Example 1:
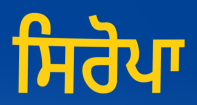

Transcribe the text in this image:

ਸਿਰੋਪਾ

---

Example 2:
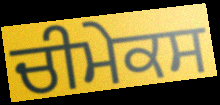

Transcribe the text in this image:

ਚੀਮੇਕਸ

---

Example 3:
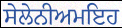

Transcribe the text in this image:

ਸੇਲੇਨੀਅਮਇਹ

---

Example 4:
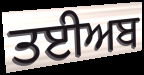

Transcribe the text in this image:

ਤਈਅਬ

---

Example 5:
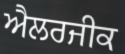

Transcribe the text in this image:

ਐਲਰਜੀਕ